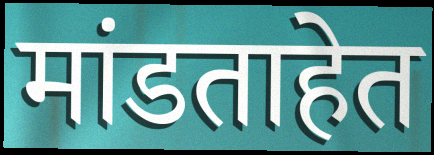
मांडताहेत